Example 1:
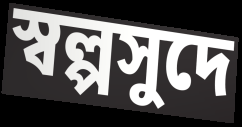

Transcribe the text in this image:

স্বল্পসুদে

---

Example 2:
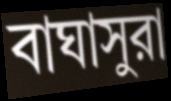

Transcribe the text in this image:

বাঘাসুরা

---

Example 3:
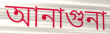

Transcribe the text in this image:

আনাগুনা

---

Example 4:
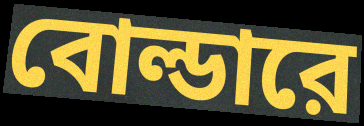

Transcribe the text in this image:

বোল্ডারে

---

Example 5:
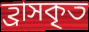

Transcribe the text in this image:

হ্রাসকৃত